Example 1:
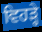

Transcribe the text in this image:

ਵਿਹੜ੍ਹੇ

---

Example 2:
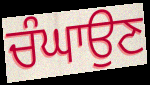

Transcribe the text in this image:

ਚੰਘਾਉਣ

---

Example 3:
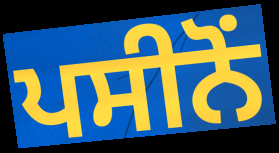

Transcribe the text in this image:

ਪਸੀਨੋਂ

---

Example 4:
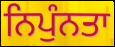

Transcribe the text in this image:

ਨਿਪੁੰਨਤਾ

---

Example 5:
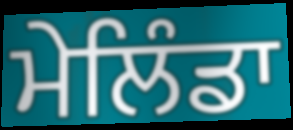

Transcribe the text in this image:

ਮੇਲਿੰਡਾ